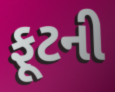
ફૂટની